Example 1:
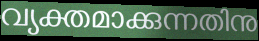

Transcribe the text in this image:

വ്യക്തമാക്കുന്നതിനു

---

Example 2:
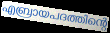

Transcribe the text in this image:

എബ്രായപദത്തിന്റെ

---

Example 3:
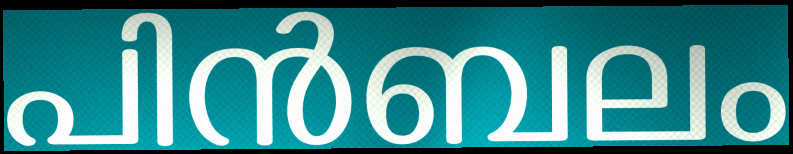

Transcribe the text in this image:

പിൻബലം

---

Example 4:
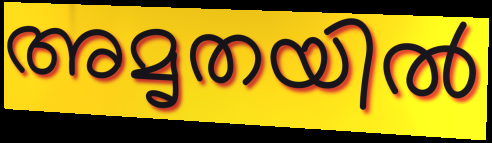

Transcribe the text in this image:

അമൃതയിൽ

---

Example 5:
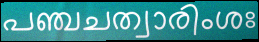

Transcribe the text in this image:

പഞ്ചചത്വാരിംശഃ